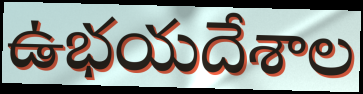
ఉభయదేశాల